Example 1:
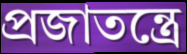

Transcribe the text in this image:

প্রজাতন্ত্রে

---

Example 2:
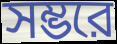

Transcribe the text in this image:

সম্ভরে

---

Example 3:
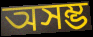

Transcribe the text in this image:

অসম্ভ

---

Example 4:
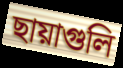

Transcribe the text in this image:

ছায়াগুলি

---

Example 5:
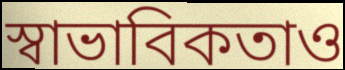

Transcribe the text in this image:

স্বাভাবিকতাও